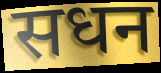
सधन